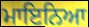
ਮਾਇਨਿਆ